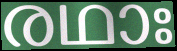
രഥാഃ